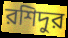
রশিদুর